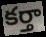
కర్తా